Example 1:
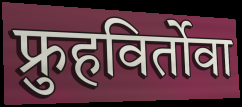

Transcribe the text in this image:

फ्रुहविर्तोवा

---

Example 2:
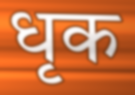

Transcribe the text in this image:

धृक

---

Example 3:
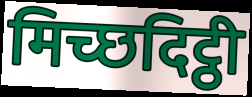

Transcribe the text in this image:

मिच्छदिट्ठी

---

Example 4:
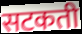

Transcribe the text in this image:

सटकती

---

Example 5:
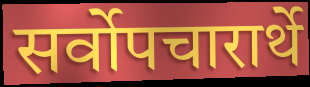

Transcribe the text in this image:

सर्वोपचारार्थे